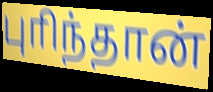
புரிந்தான்